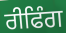
ਰੀਫਿੰਗ